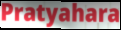
Pratyahara